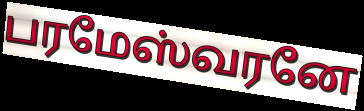
பரமேஸ்வரனே